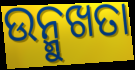
ଉନ୍ମୁଖତା